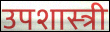
उपशास्त्री